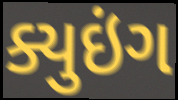
ક્યુઇંગ